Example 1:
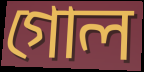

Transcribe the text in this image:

গোল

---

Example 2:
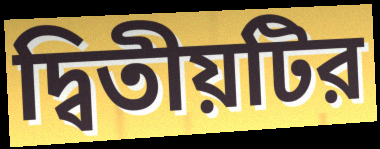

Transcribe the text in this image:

দ্বিতীয়টির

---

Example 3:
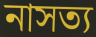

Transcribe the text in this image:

নাসত্য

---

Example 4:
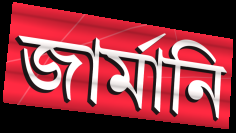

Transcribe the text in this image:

জার্মানি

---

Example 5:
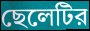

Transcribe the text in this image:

ছেলেটির